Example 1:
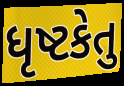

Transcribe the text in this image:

ધૃષ્ટકેતુ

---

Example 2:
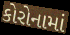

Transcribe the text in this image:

કોરોનામાં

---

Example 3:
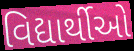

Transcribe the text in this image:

વિદ્યાર્થીઓ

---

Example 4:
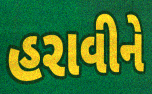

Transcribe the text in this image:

હરાવીને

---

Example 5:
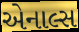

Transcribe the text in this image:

એનાલ્સ